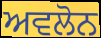
ਅਵਲੋਨ